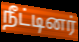
நீட்டினர்